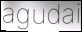
agudai